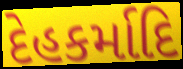
દેહકર્માદિ